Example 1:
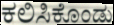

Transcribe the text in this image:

ಕಲಿಸಿಕೊಂಡು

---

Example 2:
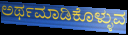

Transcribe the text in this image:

ಅರ್ಥಮಾಡಿಕೊಳ್ಳುವ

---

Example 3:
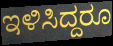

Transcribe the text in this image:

ಇಳಿಸಿದ್ದರೂ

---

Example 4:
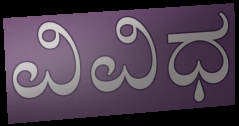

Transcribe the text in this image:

ವಿವಿಧ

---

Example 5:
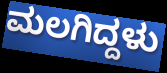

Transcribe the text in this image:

ಮಲಗಿದ್ದಳು